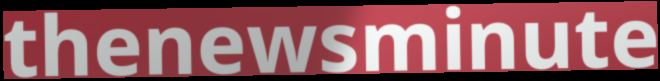
thenewsminute